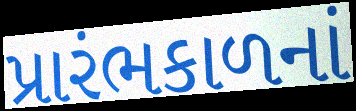
પ્રારંભકાળનાં